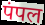
पंपल